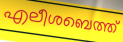
എലീശബെത്ത്